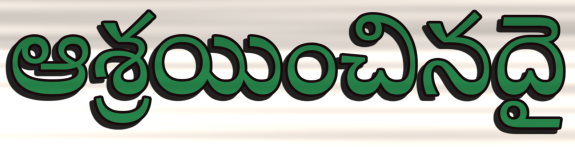
ఆశ్రయించినదై